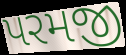
પરમજી